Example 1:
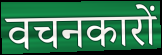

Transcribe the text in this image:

वचनकारों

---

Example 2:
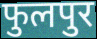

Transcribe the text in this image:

फुलपुर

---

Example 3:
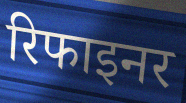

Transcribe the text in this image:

रिफाइनर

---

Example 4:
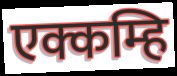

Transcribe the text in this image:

एक्कम्हि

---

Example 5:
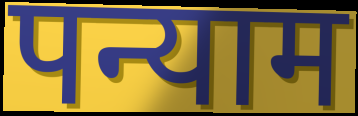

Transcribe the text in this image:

पन्याम